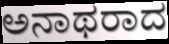
ಅನಾಥರಾದ